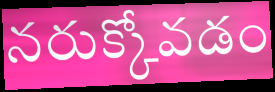
నరుక్కోవడం